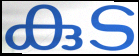
കുട